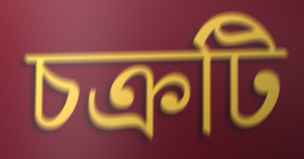
চক্রটি